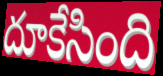
దూకేసింది